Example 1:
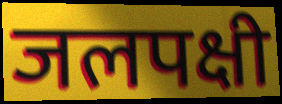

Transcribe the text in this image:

जलपक्षी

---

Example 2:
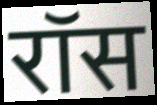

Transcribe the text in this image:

रॉस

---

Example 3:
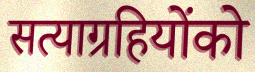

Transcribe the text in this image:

सत्याग्रहियोंको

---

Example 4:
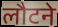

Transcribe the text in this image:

लौटने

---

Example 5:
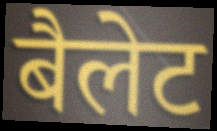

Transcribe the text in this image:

बैलेट